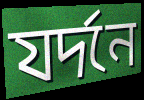
যর্দনে